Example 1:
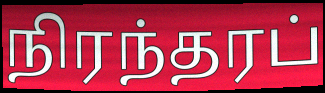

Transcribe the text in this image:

நிரந்தரப்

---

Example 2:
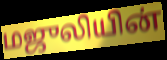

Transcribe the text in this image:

மஜுலியின்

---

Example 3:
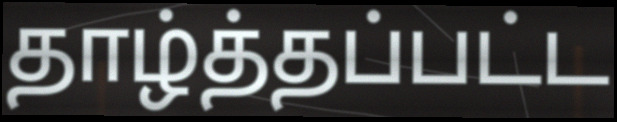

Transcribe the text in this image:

தாழ்த்தப்பட்ட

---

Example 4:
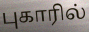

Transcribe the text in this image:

புகாரில்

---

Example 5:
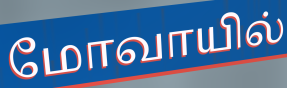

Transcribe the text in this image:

மோவாயில்